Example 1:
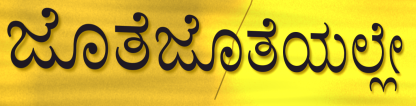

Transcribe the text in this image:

ಜೊತೆಜೊತೆಯಲ್ಲೇ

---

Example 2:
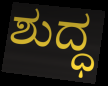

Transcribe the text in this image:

ಶುದ್ಧ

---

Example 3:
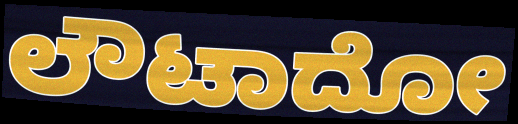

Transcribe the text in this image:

ಲೌಟಾದೋ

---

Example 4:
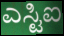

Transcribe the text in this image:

ಎಸ್ಟಿಐ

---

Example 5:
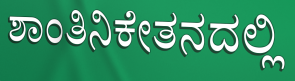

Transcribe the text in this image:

ಶಾಂತಿನಿಕೇತನದಲ್ಲಿ